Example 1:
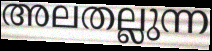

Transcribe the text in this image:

അലതല്ലുന്ന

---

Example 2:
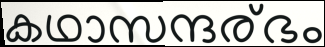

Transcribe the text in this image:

കഥാസന്ദര്ഭം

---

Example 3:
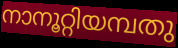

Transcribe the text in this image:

നാനൂറ്റിയമ്പതു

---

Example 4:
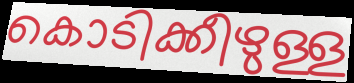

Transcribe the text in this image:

കൊടിക്കീഴുള്ള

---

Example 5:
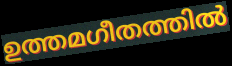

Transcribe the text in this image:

ഉത്തമഗീതത്തിൽ